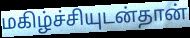
மகிழ்ச்சியுடன்தான்